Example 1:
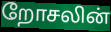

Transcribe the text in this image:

றோசலின்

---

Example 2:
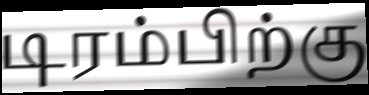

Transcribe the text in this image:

டிரம்பிற்கு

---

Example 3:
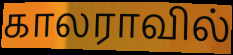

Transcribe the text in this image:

காலராவில்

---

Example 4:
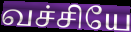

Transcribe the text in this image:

வச்சியே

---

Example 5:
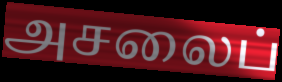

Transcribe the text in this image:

அசலைப்